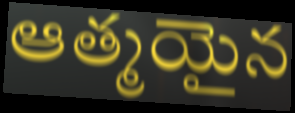
ఆత్మయైన